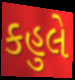
કહુલે